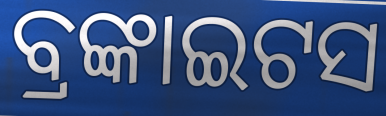
ବ୍ରଙ୍କାଇଟସ